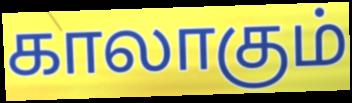
காலாகும்